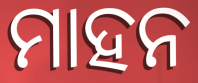
ମାହନ